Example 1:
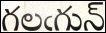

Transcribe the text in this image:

గలఁగున్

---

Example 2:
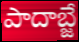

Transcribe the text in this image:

పాదాబ్జే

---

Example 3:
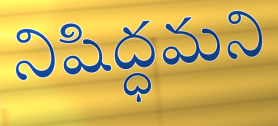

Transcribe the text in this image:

నిషిద్ధమని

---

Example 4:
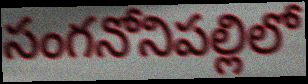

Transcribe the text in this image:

సంగనోనిపల్లిలో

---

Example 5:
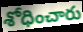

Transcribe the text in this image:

శోధించారు